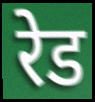
रेड